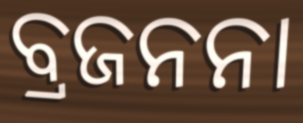
ବ୍ରଜନନା